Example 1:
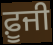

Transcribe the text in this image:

ਫ਼ੂਜੀ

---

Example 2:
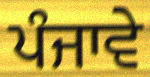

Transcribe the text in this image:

ਪੰਜਾਵੇ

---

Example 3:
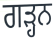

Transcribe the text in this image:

ਗੜ੍ਹਨ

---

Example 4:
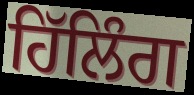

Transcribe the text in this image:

ਹਿੱਲਿੰਗ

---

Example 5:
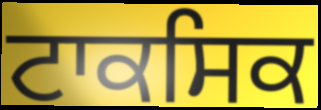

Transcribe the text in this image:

ਟਾਕਸਿਕ